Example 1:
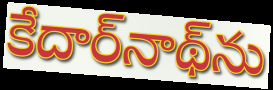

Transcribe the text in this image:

కేదార్‌నాథ్‌ను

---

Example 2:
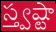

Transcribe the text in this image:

స్త్వష్టా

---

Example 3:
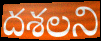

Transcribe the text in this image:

దశలని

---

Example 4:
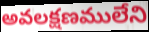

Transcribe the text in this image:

అవలక్షణములేని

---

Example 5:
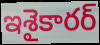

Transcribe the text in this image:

ఇశైకారర్